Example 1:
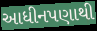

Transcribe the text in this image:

આધીનપણાથી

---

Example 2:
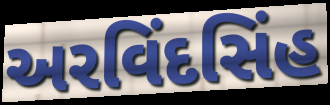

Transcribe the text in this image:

અરવિંદસિંહ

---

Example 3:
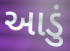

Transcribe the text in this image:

આડું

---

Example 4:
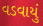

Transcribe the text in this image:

વડવાયું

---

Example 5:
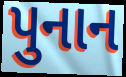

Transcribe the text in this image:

પુનાન